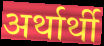
अर्थार्थी